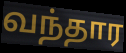
வந்தார